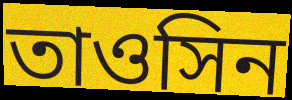
তাওসিন